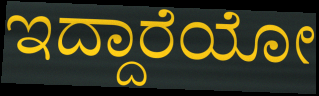
ಇದ್ದಾರೆಯೋ